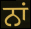
ਨਾਂ